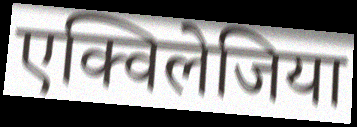
एक्विलेजिया